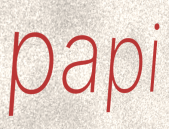
papi